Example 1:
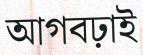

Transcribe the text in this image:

আগবঢ়াই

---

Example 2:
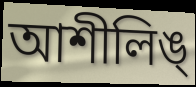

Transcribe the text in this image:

আশীলিঙ্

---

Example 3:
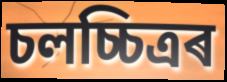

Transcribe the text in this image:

চলচ্চিত্ৰৰ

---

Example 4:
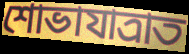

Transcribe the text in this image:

শোভাযাত্ৰাত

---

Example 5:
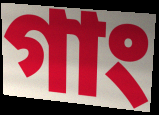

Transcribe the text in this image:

গাং